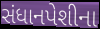
સંધાનપેશીના